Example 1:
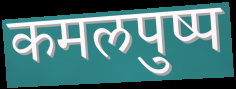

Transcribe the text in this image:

कमलपुष्प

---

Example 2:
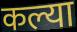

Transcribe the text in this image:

कल्या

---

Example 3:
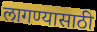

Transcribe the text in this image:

लागण्यासाठी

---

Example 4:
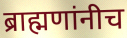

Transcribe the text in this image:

ब्राह्मणांनीच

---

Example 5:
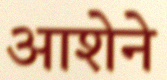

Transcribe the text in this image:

आशेने